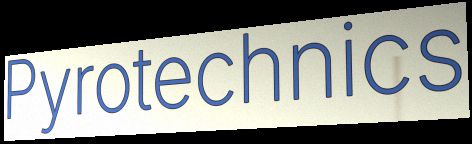
Pyrotechnics